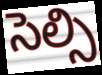
సెల్సి